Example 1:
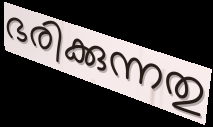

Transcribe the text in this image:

ഭരിക്കുന്നതു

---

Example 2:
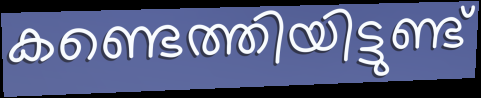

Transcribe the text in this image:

കണ്ടെത്തിയിട്ടുണ്ട്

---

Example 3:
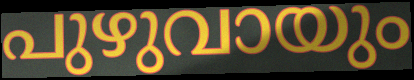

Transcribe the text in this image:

പുഴുവായും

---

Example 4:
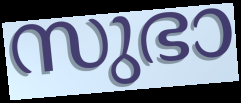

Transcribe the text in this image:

സുഭാ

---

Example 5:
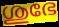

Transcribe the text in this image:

ശുഭേ